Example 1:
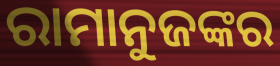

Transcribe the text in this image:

ରାମାନୁଜଙ୍କର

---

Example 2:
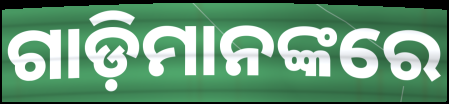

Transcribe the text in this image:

ଗାଡ଼ିମାନଙ୍କରେ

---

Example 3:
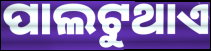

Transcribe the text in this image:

ପାଲଟୁଥାଏ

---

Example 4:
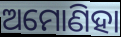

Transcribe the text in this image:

ଅମୋଣିହା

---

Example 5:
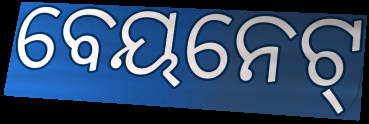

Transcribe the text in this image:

ବେୟନେଟ୍